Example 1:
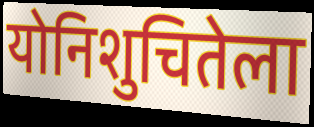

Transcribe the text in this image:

योनिशुचितेला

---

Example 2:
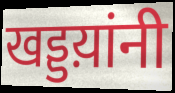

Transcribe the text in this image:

खड्डय़ांनी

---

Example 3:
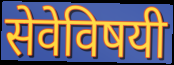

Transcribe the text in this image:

सेवेविषयी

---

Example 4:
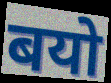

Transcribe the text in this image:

बयो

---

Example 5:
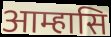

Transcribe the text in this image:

आम्हासि